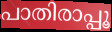
പാതിരാപ്പൂ